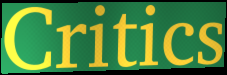
Critics